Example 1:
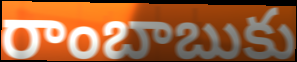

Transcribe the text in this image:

రాంబాబుకు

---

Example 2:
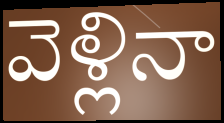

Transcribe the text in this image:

వెళ్లినా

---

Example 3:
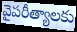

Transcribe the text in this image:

వైపరీత్యాలకు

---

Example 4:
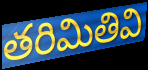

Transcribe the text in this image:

తరిమితివి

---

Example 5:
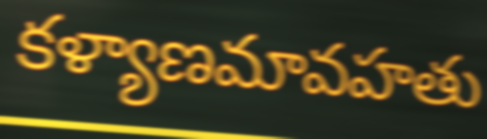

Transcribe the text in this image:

కళ్యాణమావహతు